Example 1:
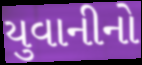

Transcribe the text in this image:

યુવાનીનો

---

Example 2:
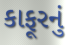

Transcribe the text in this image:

કાફૂરનું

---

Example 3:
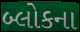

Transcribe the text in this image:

બ્લોકના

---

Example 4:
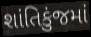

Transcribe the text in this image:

શાંતિકુંજમાં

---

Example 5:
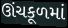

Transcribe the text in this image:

ઊંચકૂળમાં